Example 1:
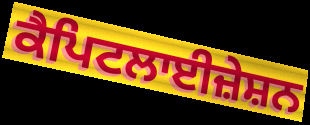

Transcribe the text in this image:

ਕੈਪਿਟਲਾਈਜ਼ੇਸ਼ਨ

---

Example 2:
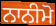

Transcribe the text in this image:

ਨਾਨੀਮੋ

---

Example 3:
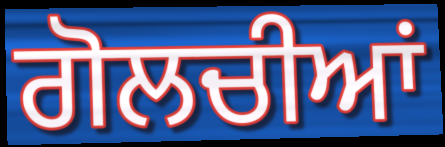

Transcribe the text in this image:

ਗੋਲਚੀਆਂ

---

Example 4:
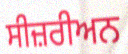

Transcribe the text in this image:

ਸੀਜ਼ਰੀਅਨ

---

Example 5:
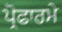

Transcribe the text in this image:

ਪ੍ਰੋਫਾਰਮੇ